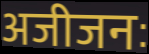
अजीजनः